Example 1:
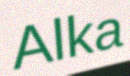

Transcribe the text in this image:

Alka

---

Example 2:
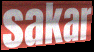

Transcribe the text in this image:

sakar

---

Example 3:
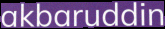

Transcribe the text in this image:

akbaruddin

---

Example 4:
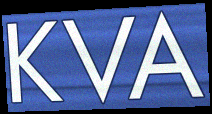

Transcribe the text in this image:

KVA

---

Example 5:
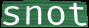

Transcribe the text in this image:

snot